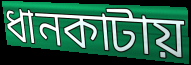
ধানকাটায়